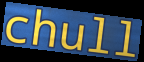
chull